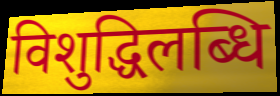
विशुद्धिलब्धि